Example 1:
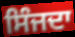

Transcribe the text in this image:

ਸਿੰਜਦਾ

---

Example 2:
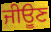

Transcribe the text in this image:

ਜੀਊਣ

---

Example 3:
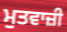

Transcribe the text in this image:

ਮੁਤਵਾਜ਼ੀ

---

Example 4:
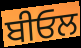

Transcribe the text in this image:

ਬੀਓਲ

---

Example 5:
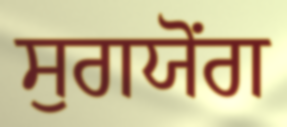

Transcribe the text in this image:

ਸੁਗਯੋਂਗ